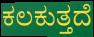
ಕಲಕುತ್ತದೆ